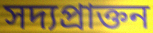
সদ্যপ্রাক্তন